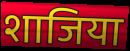
शाजिया